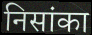
निसांका